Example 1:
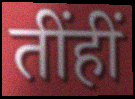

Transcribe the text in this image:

तींहीं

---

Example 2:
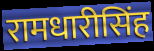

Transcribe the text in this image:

रामधारीसिंह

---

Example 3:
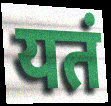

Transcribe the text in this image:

यतं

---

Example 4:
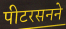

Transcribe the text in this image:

पीटरसनने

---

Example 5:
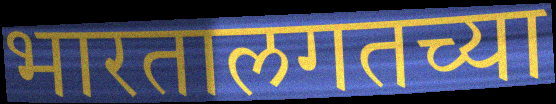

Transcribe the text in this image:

भारतालगतच्या